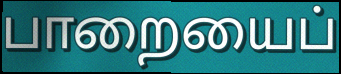
பாறையைப்